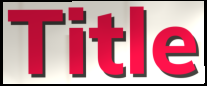
Title